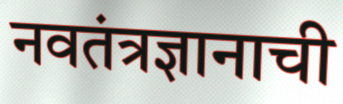
नवतंत्रज्ञानाची